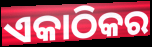
ଏକାଠିକର